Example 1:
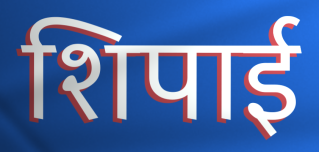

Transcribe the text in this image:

शिपाई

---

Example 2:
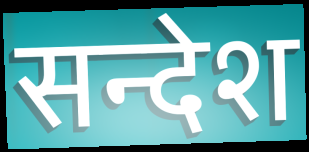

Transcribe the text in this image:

सन्देश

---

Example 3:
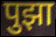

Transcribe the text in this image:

पुझा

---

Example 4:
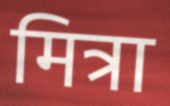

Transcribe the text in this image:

मित्रा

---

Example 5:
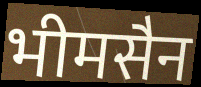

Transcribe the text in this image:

भीमसैन